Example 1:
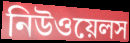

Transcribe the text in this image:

নিউওয়েলস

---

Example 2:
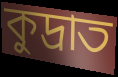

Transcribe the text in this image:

কুদ্রাত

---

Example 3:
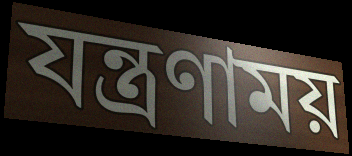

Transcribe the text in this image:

যন্ত্রণাময়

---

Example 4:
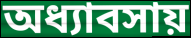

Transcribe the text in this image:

অধ্যাবসায়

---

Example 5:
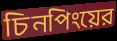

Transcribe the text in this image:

চিনপিংয়ের